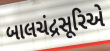
બાલચંદ્રસૂરિએ